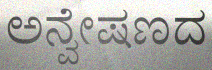
ಅನ್ವೇಷಣದ